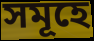
সমূহে